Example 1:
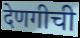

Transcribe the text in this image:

देणगीची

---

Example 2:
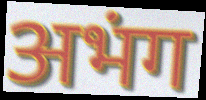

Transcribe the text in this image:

अभंग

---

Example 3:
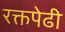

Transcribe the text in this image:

रक्तपेढी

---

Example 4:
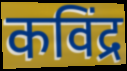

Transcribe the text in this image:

कविंद्र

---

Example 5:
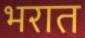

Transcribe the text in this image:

भरात